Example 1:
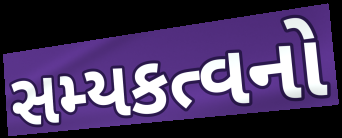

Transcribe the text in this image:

સમ્યકત્વનો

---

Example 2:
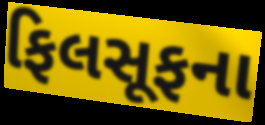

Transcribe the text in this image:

ફિલસૂફના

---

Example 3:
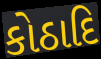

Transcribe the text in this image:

કોઠાદિ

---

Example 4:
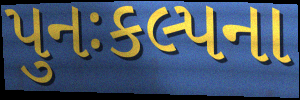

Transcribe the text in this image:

પુનઃકલ્પના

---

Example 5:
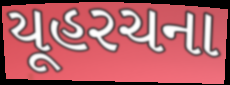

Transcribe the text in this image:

યૂહરચના